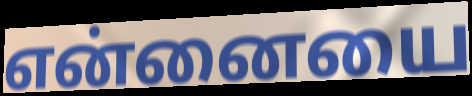
என்னையை